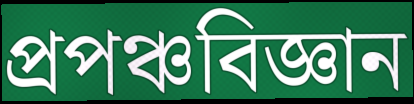
প্ৰপঞ্চবিজ্ঞান